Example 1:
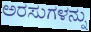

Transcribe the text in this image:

ಅರಸುಗಳನ್ನು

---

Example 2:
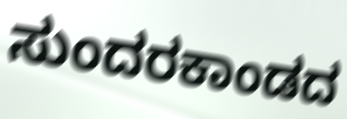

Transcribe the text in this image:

ಸುಂದರಕಾಂಡದ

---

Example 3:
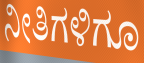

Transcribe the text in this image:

ನೀತಿಗಳಿಗೂ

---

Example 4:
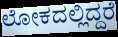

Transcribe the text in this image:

ಲೋಕದಲ್ಲಿದ್ದರೆ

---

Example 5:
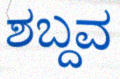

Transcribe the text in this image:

ಶಬ್ದವ